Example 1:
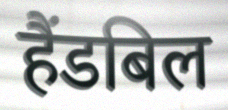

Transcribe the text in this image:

हैंडबिल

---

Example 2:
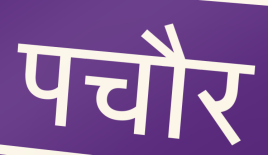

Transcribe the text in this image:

पचौर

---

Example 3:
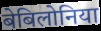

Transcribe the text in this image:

बेबिलोनिया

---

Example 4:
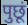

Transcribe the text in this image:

पुछूं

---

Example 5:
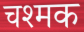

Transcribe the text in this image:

चश्मक